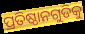
ପ୍ରତିଷ୍ଠାନଗୁଡିକୁ